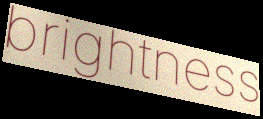
brightness